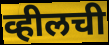
व्हीलची